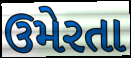
ઉમેરતા